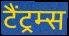
टैंट्रम्स